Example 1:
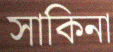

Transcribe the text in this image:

সাকিনা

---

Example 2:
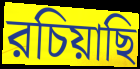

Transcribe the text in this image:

রচিয়াছি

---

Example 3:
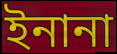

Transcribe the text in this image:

ইনানা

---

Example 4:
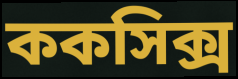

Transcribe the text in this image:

ককসিক্স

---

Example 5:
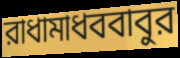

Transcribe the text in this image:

রাধামাধববাবুর